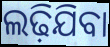
ଲଢ଼ିଯିବା